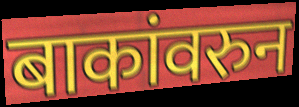
बाकांवरुन